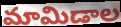
మామిడాల